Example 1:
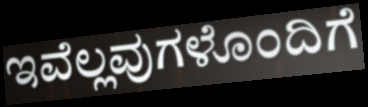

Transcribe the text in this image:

ಇವೆಲ್ಲವುಗಳೊಂದಿಗೆ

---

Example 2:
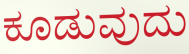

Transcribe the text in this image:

ಕೂಡುವುದು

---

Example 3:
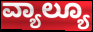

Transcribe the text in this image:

ವ್ಯಾಲ್ಯೂ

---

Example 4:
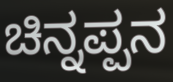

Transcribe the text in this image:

ಚಿನ್ನಪ್ಪನ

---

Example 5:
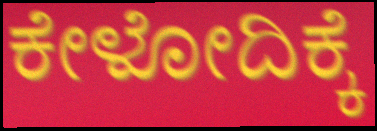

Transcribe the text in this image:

ಕೇಳೋದಿಕ್ಕೆ